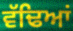
ਵੱਢਿਆਂ